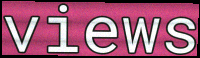
views